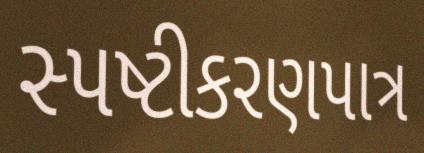
સ્પષ્ટીકરણપાત્ર